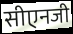
सीएनजी